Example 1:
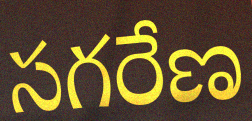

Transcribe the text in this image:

సగరేణ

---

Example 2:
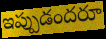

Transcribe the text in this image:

ఇప్పుడందరూ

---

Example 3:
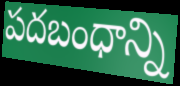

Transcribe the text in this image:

పదబంధాన్ని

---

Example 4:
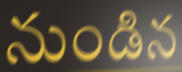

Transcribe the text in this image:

నుండిన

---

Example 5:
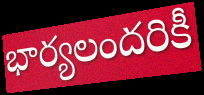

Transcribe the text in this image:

భార్యలందరికీ